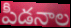
పీడనాల